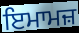
ਇਮਾਮਜ਼